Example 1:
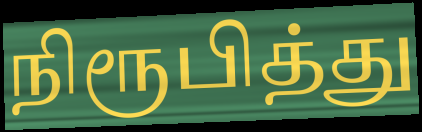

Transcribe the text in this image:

நிரூபித்து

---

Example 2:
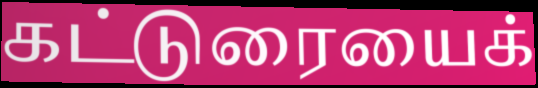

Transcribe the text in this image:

கட்டுரையைக்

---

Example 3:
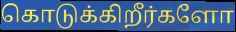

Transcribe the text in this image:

கொடுக்கிறீர்களோ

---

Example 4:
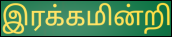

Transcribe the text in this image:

இரக்கமின்றி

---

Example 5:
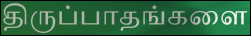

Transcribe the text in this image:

திருப்பாதங்களை